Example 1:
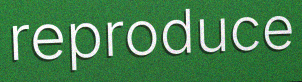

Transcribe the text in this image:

reproduce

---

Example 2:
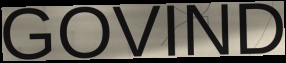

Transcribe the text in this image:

GOVIND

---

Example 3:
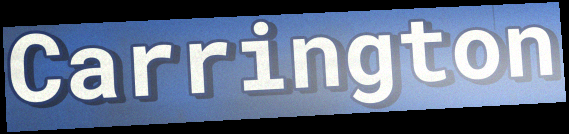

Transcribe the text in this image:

Carrington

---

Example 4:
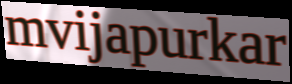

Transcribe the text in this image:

mvijapurkar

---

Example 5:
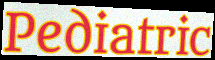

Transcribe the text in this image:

Pediatric